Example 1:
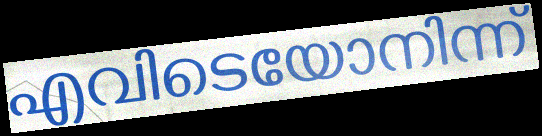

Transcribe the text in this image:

എവിടെയോനിന്ന്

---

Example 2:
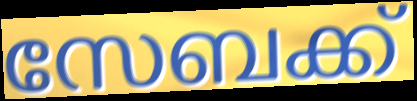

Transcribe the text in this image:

സേബക്ക്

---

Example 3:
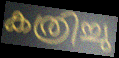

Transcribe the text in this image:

കത്രിച്ചു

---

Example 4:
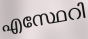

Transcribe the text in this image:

എസ്ഥേറി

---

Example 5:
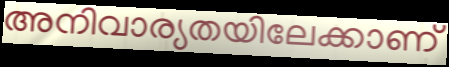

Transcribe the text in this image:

അനിവാര്യതയിലേക്കാണ്